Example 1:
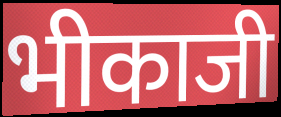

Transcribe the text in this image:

भीकाजी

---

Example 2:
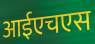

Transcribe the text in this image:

आईएचएस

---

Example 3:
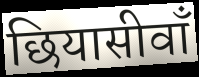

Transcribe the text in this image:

छियासीवाँ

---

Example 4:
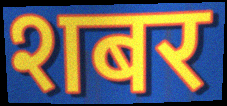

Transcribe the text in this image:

शबर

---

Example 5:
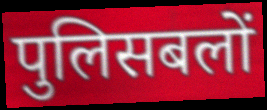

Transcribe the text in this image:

पुलिसबलों